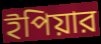
ইপিয়ার